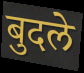
बुदले